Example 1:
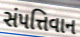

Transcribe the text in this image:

સંપત્તિવાન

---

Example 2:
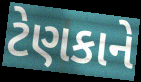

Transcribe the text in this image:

ટેણકાને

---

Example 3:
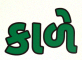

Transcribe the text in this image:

કાળે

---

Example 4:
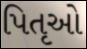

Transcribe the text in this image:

પિતૃઓ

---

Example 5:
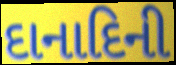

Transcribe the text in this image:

દાનાદિની